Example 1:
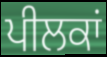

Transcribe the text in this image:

ਪੀਲਕਾਂ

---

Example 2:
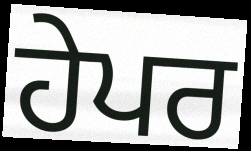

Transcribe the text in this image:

ਹੇਪਰ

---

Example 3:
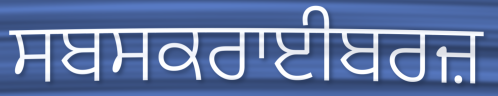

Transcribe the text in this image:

ਸਬਸਕਰਾਈਬਰਜ਼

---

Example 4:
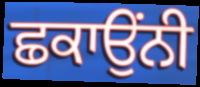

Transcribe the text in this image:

ਛਕਾਉਂਨੀ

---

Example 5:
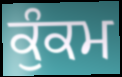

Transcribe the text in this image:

ਕੁੰਕਮ